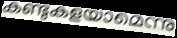
കണ്ടുകളയാമെന്നു